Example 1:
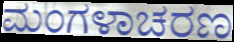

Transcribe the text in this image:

ಮಂಗಳಾಚರಣ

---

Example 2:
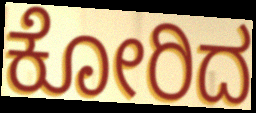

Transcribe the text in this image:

ಕೋರಿದ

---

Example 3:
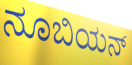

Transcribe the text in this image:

ನೂಬಿಯನ್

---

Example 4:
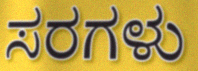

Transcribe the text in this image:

ಸರಗಳು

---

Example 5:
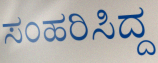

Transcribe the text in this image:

ಸಂಹರಿಸಿದ್ದ